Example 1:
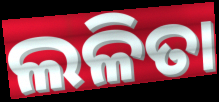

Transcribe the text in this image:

ଲଳିତା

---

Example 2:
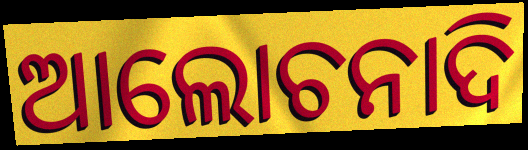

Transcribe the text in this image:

ଆଲୋଚନାଦି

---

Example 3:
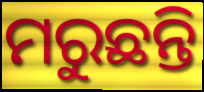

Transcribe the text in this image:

ମରୁଛନ୍ତି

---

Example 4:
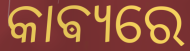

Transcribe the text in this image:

କାଵ୍ଯରେ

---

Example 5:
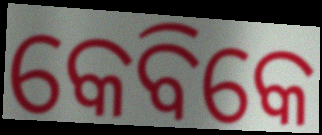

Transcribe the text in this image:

କେବିକେ